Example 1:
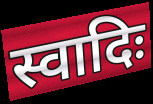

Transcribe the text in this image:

स्वादिः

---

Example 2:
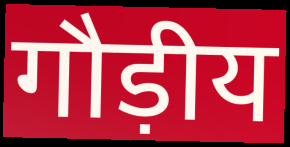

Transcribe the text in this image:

गौड़ीय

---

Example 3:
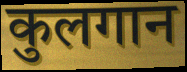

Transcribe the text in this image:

कुलगान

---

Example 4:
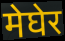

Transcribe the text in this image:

मेघेर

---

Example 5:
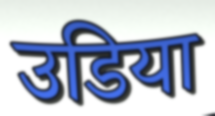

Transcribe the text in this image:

उडिया